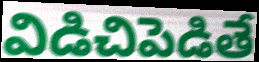
విడిచిపెడితే